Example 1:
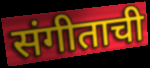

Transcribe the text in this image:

संगीताची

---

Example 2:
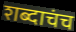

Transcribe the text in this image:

शब्दाचंच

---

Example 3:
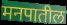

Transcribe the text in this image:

मनपातील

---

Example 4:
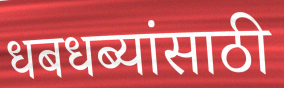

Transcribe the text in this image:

धबधब्यांसाठी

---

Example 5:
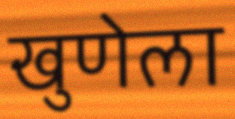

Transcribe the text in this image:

खुणेला